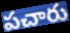
పచారు